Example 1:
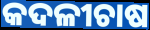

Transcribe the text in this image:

କଦଳୀଚାଷ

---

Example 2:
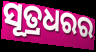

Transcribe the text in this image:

ସୂତ୍ରଧରର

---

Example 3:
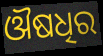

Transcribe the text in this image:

ଔଷଧିର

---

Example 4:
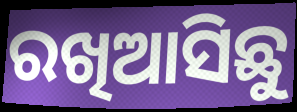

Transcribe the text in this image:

ରଖିଆସିଛୁ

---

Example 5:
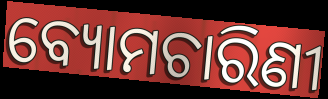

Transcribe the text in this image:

ବ୍ୟୋମଚାରିଣୀ